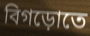
বিগড়োতে